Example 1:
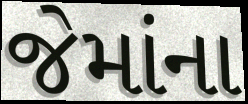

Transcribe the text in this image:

જેમાંના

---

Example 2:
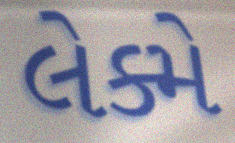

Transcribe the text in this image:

લેક્મે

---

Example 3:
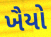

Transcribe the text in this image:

ખૈયો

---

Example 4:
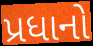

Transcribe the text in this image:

પ્રધાનો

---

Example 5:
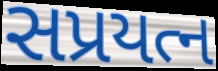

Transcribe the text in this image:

સપ્રયત્ન